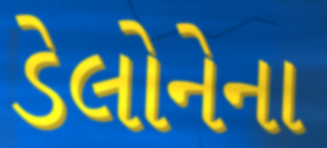
ડેલોનેના